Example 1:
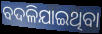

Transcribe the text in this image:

ବଦଳିଯାଇଥିବା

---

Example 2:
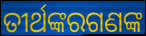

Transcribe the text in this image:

ତୀର୍ଥଙ୍କରଗଣଙ୍କ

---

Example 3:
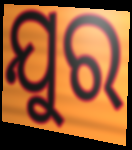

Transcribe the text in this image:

ଯୁର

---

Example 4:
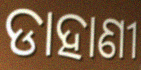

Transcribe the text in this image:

ଡାହାଣୀ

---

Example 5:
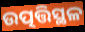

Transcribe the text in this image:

ଉତ୍ପତ୍ତିସ୍ଥଳ